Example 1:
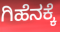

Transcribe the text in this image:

ಗಿಹೆನಕ್ಕೆ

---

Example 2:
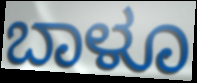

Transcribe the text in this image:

ಬಾಳೂ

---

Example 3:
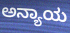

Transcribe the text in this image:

ಅನ್ಯಾಯ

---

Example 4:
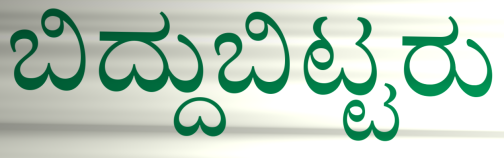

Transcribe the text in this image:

ಬಿದ್ದುಬಿಟ್ಟರು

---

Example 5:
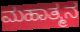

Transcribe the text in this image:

ಮಹಾತ್ಮನ